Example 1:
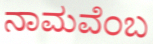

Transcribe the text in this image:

ನಾಮವೆಂಬ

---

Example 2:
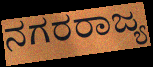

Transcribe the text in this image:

ನಗರರಾಜ್ಯ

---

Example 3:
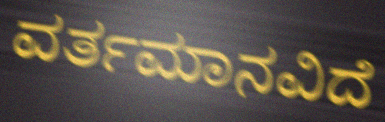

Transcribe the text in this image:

ವರ್ತಮಾನವಿದೆ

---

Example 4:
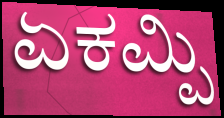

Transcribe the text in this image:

ಏಕಮ್ಪಿ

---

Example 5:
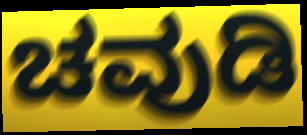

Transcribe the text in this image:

ಚವುಡಿ